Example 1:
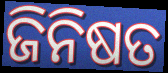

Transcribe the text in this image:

ଜିନିଷତ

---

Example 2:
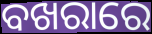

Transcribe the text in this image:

ବଖରାରେ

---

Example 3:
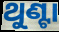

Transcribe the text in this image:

ଥୁଣ୍ଟା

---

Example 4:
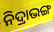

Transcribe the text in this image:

ନିଦ୍ରାଭଙ୍ଗ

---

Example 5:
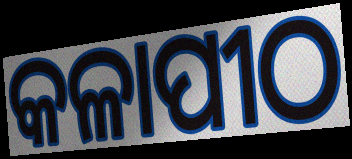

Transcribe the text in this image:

କଳାପୀଠ